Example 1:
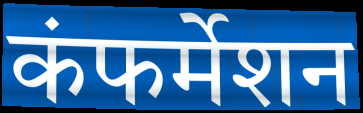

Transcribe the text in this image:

कंफर्मेशन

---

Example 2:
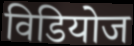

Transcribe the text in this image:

विडियोज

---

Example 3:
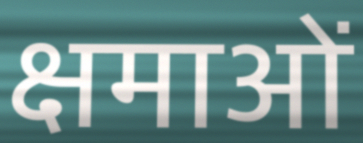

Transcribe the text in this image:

क्षमाओं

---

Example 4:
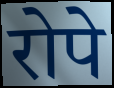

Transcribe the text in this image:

रोपे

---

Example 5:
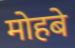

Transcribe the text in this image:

मोहबे